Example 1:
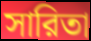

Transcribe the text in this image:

সারিতা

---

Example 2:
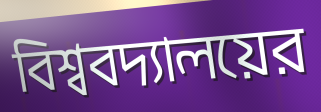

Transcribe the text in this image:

বিশ্ববদ্যালয়ের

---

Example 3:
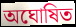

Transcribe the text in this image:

অঘোষিত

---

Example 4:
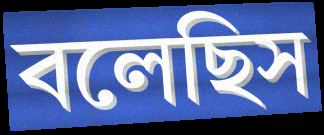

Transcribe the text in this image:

বলেছিস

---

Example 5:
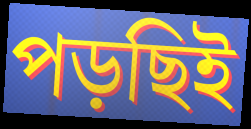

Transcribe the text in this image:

পড়ছিই